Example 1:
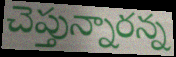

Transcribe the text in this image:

చెప్తున్నారన్న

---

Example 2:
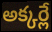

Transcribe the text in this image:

అక్కర్లే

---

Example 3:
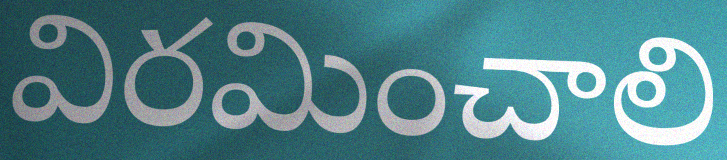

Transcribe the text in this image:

విరమించాలి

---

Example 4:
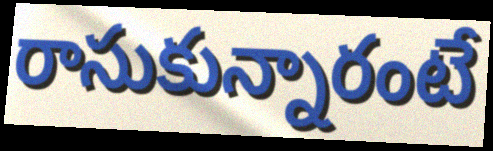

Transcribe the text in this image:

రాసుకున్నారంటే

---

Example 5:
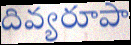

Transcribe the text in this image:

దివ్యరూపా